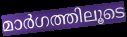
മാർഗത്തിലൂടെ